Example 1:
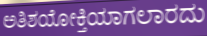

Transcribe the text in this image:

ಅತಿಶಯೋಕ್ತಿಯಾಗಲಾರದು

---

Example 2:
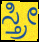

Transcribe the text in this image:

ಸ್ತ್ರೀ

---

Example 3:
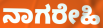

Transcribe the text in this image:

ನಾಗರೇಹಿ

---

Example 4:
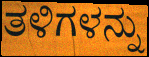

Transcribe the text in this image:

ತಳಿಗಳನ್ನು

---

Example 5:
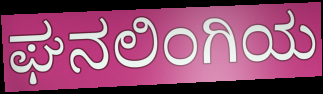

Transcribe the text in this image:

ಘನಲಿಂಗಿಯ